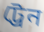
ট্রেন